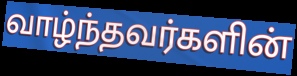
வாழ்ந்தவர்களின்